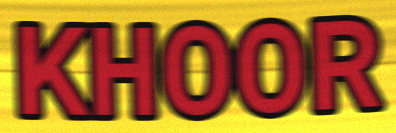
KHOOR